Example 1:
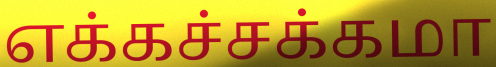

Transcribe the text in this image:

எக்கச்சக்கமா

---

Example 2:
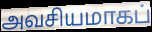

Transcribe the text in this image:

அவசியமாகப்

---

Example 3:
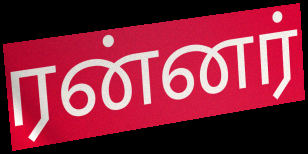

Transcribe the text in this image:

ரன்னர்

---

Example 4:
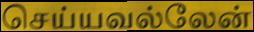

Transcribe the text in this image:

செய்யவல்லேன்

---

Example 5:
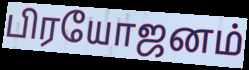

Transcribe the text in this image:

பிரயோஜனம்